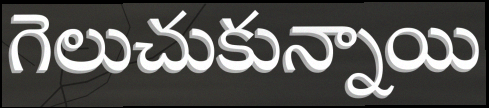
గెలుచుకున్నాయి